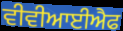
ਵੀਵੀਆਈਐਫ